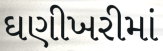
ઘણીખરીમાં